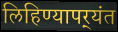
लिहिण्यापर्यंत